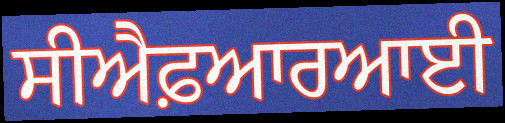
ਸੀਐਫ਼ਆਰਆਈ